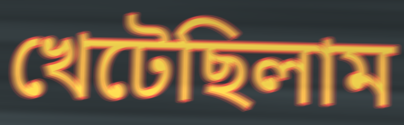
খেটেছিলাম